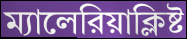
ম্যালেরিয়াক্লিষ্ট